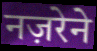
नज़रेने